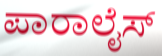
ಪಾರಾಲೈಸ್